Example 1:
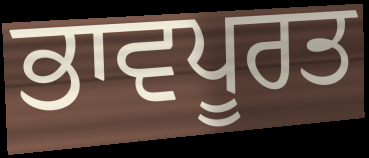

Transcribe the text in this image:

ਭਾਵਪੂਰਤ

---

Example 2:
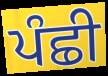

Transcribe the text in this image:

ਪੰਛੀ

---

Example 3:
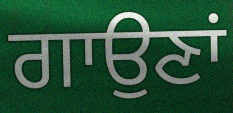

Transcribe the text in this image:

ਗਾਉਣਾਂ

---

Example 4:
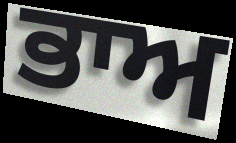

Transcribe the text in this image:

ਭਾਅ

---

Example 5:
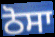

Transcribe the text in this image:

ਠੋਸਾ